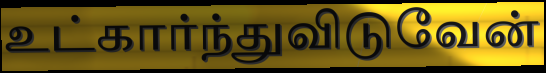
உட்கார்ந்துவிடுவேன்